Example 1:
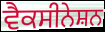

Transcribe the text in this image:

ਵੈਕਸੀਨੇਸ਼ਨ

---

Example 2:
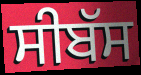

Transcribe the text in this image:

ਸੀਬੱਸ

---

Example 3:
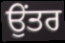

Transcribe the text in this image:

ਉਂਤਰ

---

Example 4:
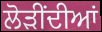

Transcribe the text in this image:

ਲੋੜੀਂਦੀਆਂ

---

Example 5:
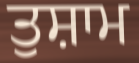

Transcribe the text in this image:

ਤੁਸ਼ਾਮ